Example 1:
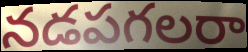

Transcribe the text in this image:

నడపగలరా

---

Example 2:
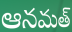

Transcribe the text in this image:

ఆనమత్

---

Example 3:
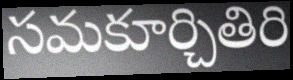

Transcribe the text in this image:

సమకూర్చితిరి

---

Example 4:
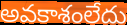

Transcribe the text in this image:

అవకాశంలేదు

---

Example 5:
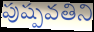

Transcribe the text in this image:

పుష్పవతిని